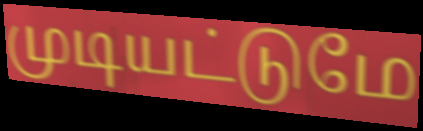
முடியட்டுமே